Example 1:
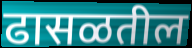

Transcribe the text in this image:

ढासळतील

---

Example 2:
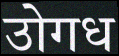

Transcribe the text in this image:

उोगध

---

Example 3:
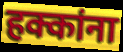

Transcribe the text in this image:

हक्कांना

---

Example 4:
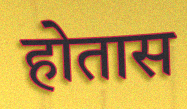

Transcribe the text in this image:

होतास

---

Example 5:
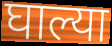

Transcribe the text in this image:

घाल्या